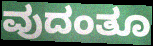
ವುದಂತೂ